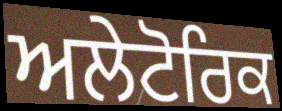
ਅਲੇਟੋਰਿਕ